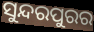
ସୁନ୍ଦରପୁରର